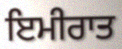
ਇਮੀਰਾਤ